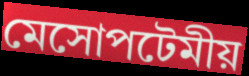
মেসোপটেমীয়